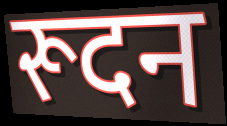
रूदन